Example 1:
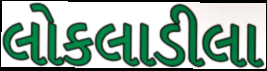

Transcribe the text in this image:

લોકલાડીલા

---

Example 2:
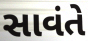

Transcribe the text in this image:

સાવંતે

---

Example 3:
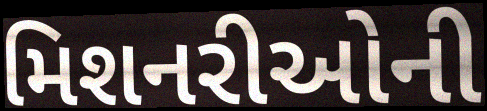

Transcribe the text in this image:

મિશનરીઓની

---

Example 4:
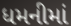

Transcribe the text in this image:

ધમનીમાં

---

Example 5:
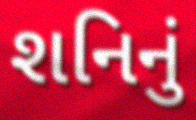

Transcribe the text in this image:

શનિનું